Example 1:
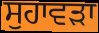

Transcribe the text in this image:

ਸੁਹਾਵੜਾ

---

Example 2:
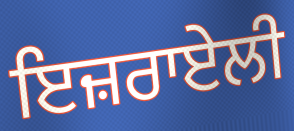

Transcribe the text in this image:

ਇਜ਼ਰਾਏਲੀ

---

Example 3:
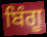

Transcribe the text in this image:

ਬਿੰਗੂ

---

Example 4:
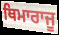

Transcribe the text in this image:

ਥਿਮਾਰਾਜੂ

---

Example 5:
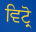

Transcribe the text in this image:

ਵਿਟ੍ਰੋ